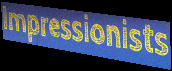
Impressionists